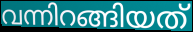
വന്നിറങ്ങിയത്